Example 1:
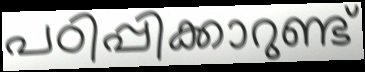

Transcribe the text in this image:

പഠിപ്പിക്കാറുണ്ട്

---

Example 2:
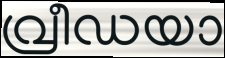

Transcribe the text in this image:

വ്രീഡയാ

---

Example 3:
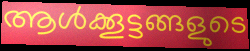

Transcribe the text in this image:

ആൾക്കൂട്ടങ്ങളുടെ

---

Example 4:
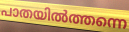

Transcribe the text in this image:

പാതയിൽത്തന്നെ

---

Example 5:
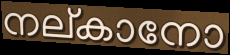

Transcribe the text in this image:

നല്കാനോ